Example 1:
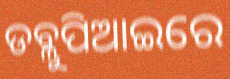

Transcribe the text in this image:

ଡବ୍ଲୁପିଆଇରେ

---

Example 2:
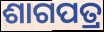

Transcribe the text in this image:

ଶାଗପତ୍ର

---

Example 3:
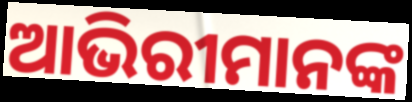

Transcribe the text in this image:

ଆଭିରୀମାନଙ୍କ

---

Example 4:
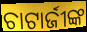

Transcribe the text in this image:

ଚାଟାର୍ଜୀଙ୍କ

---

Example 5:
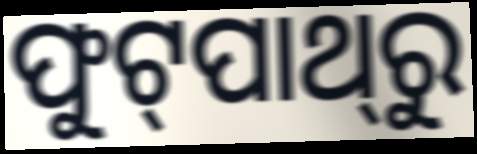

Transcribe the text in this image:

ଫୁଟ୍‌ପାଥ୍‌ରୁ